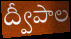
ద్వీపాల